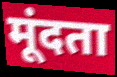
मूंदता